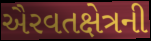
ઐરવતક્ષેત્રની